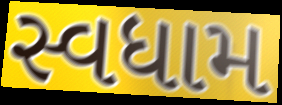
સ્વધામ